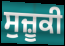
ਸੁਜ਼ੂਕੀ